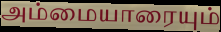
அம்மையாரையும்